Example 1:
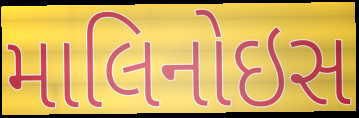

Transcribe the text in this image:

માલિનોઇસ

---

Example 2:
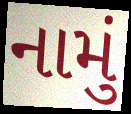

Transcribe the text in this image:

નામું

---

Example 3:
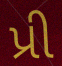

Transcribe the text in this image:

પ્રી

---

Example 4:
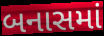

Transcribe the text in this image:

બનાસમાં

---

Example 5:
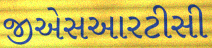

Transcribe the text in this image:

જીએસઆરટીસી